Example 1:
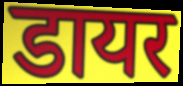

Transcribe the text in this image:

डायर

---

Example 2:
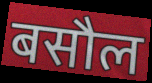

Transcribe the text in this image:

बसौल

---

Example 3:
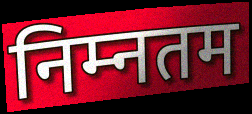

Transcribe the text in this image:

निम्नतम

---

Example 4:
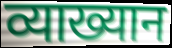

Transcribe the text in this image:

व्‍याख्‍यान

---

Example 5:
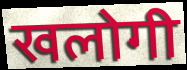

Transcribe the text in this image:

खलोगी